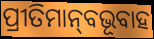
ପ୍ରୀତିମାନ୍‌ବଭୂବାହ